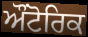
ਔਂਟੋਰਿਕ